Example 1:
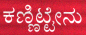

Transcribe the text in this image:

ಕಣ್ಣಿಟ್ಟೇನು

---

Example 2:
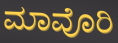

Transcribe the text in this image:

ಮಾವೊರಿ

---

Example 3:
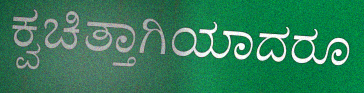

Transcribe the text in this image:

ಕ್ವಚಿತ್ತಾಗಿಯಾದರೂ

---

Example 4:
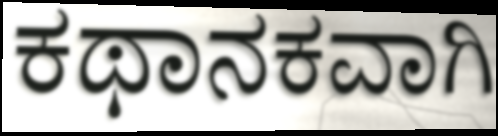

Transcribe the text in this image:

ಕಥಾನಕವಾಗಿ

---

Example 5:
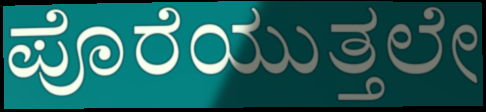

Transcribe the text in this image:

ಪೊರೆಯುತ್ತಲೇ